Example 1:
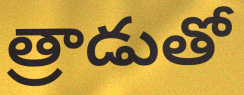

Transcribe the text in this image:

త్రాడుతో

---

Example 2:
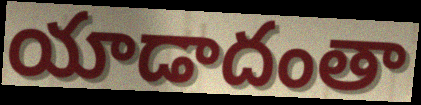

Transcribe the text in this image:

యాడాదంతా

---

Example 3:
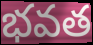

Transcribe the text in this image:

భవత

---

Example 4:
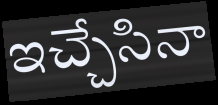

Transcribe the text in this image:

ఇచ్చేసినా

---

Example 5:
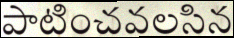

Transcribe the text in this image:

పాటించవలసిన